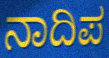
ನಾದಿಪ